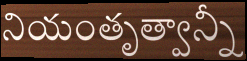
నియంతృత్వాన్నీ